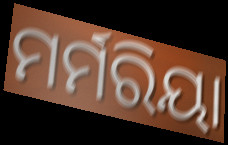
ମର୍ମରିୟା